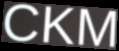
CKM